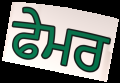
ਫੇਮਰ